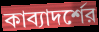
কাব্যাদর্শের